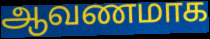
ஆவணமாக